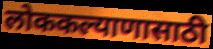
लोककल्याणासाठी